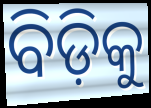
ବିଡ଼ିକୁ